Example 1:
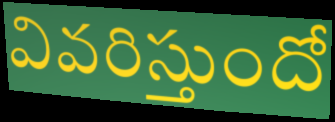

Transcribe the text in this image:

వివరిస్తుందో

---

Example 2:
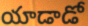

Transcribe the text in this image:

యాడాడో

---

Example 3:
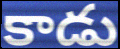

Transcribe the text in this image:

కాడు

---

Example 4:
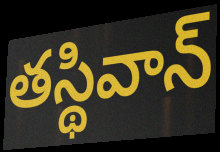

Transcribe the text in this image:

తస్థివాన్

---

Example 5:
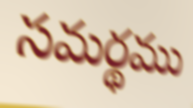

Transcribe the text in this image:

సమర్థము